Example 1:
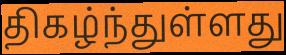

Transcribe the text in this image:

திகழ்ந்துள்ளது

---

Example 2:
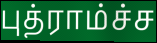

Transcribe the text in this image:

புத்ராம்ச்ச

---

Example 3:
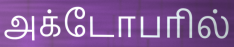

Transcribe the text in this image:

அக்டோபரில்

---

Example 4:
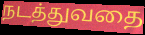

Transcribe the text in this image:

நடத்துவதை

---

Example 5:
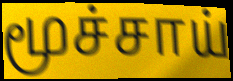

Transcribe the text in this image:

மூச்சாய்